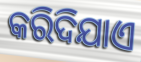
କରିଦିଯାଏ